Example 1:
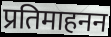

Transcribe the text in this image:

प्रतिमाहनन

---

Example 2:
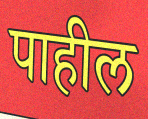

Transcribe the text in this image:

पाहील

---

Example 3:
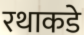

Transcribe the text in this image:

रथाकडे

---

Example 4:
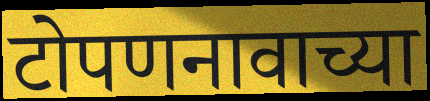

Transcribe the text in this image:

टोपणनावाच्या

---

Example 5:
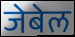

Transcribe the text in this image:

जेबेल